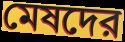
মেষদের